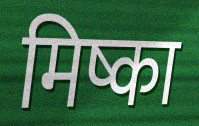
मिष्का